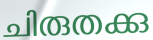
ചിരുതക്കു